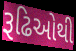
રૂઢિઓથી